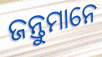
ଜନ୍ତୁମାନେ